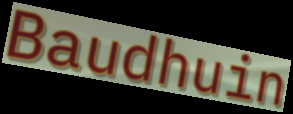
Baudhuin